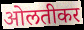
ओलतीकर